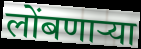
लोंबणार्‍या